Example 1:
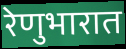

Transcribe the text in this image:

रेणुभारात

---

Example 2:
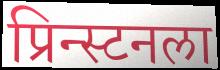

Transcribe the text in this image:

प्रिन्स्टनला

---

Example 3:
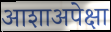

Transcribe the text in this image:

आशाअपेक्षा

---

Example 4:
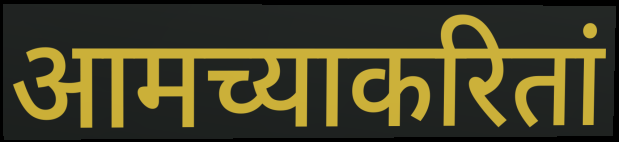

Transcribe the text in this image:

आमच्याकरितां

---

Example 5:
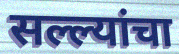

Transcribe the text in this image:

सल्ल्यांचा